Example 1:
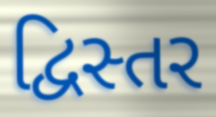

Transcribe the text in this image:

દ્વિસ્તર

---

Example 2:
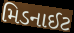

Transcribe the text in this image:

મિડનાઈટ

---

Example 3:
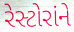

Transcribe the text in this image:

રેસ્ટોરાંને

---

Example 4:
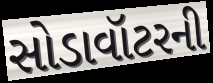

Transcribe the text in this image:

સોડાવૉટરની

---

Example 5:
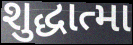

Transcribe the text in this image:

શુદ્ધાત્મા